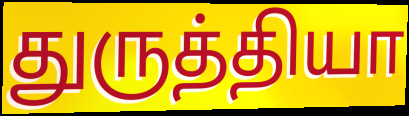
துருத்தியா